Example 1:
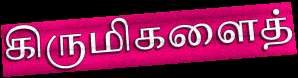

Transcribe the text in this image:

கிருமிகளைத்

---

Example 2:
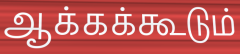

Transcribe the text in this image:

ஆக்கக்கூடும்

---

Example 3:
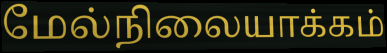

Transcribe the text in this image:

மேல்நிலையாக்கம்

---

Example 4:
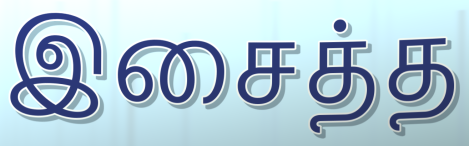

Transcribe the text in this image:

இசைத்த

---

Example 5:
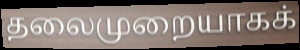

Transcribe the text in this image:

தலைமுறையாகக்